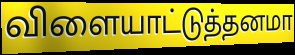
விளையாட்டுத்தனமா